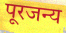
पूरजन्य